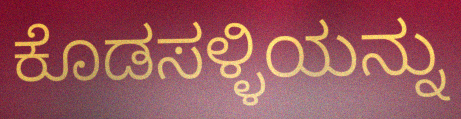
ಕೊಡಸಳ್ಳಿಯನ್ನು